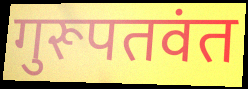
गुरूपतवंत